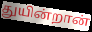
துயின்றான்